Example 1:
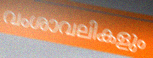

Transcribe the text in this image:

വംശാവലികളും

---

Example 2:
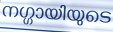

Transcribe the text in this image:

നഗ്ഗായിയുടെ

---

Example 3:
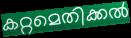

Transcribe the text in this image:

കറ്റമെതിക്കൽ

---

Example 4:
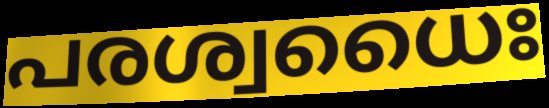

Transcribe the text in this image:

പരശ്വധൈഃ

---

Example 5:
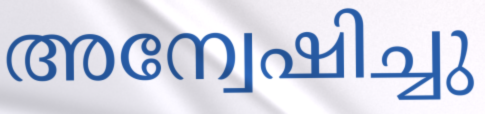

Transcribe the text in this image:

അന്വേഷിച്ചു